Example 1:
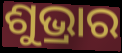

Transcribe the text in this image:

ଶୁଭ୍ରାର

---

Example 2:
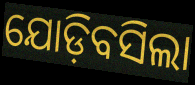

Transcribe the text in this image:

ଯୋଡ଼ିବସିଲା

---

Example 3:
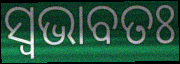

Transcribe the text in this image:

ସ୍ଵଭାବତଃ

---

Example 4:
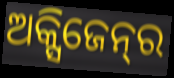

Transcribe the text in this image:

ଅକ୍ସିଜେନ୍‌ର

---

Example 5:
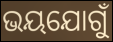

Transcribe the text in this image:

ଭୟଯୋଗୁଁ